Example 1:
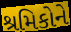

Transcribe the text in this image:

શ્રમિકોને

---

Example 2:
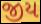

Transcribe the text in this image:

જીય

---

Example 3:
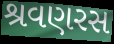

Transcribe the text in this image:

શ્રવણરસ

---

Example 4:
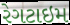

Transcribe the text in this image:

રેગટાઇમ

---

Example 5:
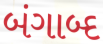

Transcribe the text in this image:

બંગાબ્દ